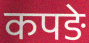
कपङे